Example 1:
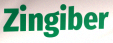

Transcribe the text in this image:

Zingiber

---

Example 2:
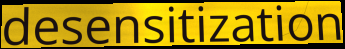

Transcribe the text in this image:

desensitization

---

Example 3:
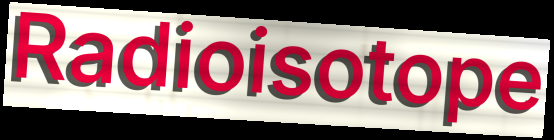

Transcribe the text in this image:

Radioisotope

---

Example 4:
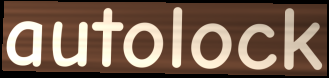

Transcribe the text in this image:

autolock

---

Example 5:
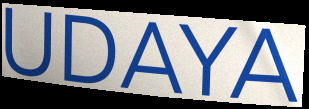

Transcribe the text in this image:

UDAYA